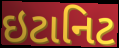
ઇટાનિટ